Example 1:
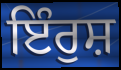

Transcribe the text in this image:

ਇੰਰੁਸ਼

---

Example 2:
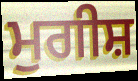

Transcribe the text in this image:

ਮੁਗੀਸ਼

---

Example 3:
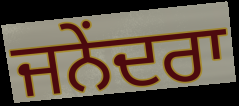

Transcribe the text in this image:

ਜਨੇਂਦਰਾ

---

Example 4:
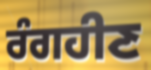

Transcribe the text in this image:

ਰੰਗਹੀਣ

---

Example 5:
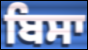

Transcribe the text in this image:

ਬਿਸਾ